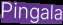
Pingala